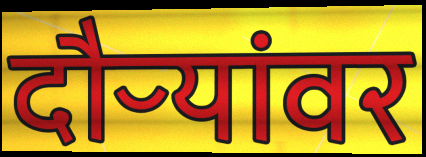
दौऱ्यांवर